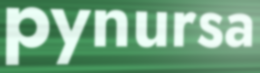
pynursa